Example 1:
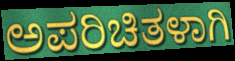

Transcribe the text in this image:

ಅಪರಿಚಿತಳಾಗಿ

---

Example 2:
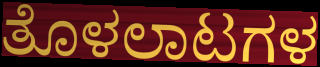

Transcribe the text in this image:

ತೊಳಲಾಟಗಳ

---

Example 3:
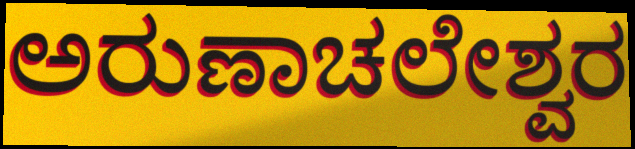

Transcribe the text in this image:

ಅರುಣಾಚಲೇಶ್ವರ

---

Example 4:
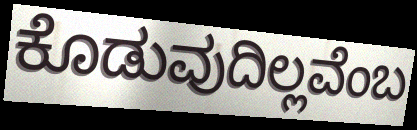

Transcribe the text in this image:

ಕೊಡುವುದಿಲ್ಲವೆಂಬ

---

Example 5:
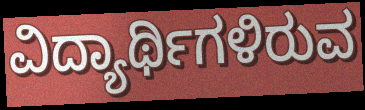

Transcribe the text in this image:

ವಿದ್ಯಾರ್ಥಿಗಳಿರುವ